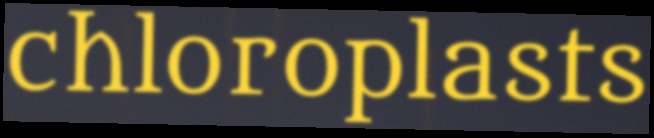
chloroplasts